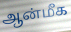
ஆன்மீக